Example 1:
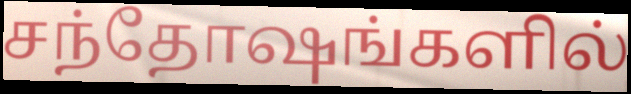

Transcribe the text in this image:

சந்தோஷங்களில்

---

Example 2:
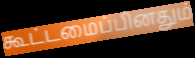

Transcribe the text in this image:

கூட்டமைப்பினதும்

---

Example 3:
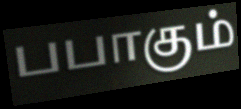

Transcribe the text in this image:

பபாகும்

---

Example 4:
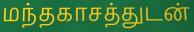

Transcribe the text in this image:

மந்தகாசத்துடன்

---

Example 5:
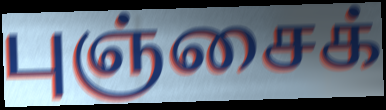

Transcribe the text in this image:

புஞ்சைக்